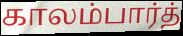
காலம்பார்த்